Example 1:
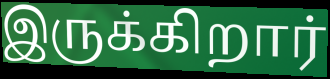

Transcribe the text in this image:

இருக்கிறார்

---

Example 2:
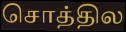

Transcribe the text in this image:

சொத்தில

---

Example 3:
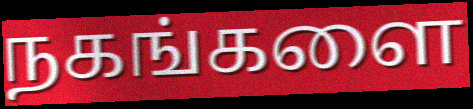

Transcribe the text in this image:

நகங்களை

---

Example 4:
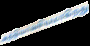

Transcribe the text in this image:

அத்தியாவசியமாகிறது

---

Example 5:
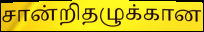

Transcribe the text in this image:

சான்றிதழுக்கான